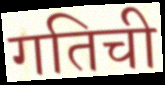
गतिची